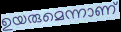
ഉയരുമെന്നാണ്